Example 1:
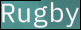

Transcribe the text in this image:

Rugby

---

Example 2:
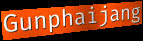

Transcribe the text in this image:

Gunphaijang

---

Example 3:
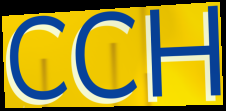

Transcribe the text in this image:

CCH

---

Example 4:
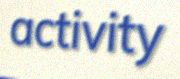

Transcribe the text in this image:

activity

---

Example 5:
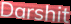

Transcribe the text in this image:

Darshit